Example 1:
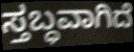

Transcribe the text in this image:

ಸ್ತಬ್ಧವಾಗಿದೆ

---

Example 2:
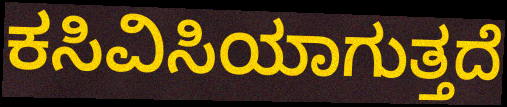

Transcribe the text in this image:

ಕಸಿವಿಸಿಯಾಗುತ್ತದೆ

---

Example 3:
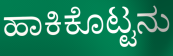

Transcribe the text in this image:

ಹಾಕಿಕೊಟ್ಟನು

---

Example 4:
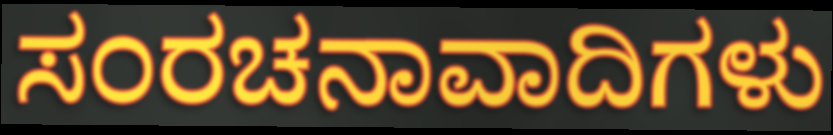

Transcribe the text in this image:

ಸಂರಚನಾವಾದಿಗಳು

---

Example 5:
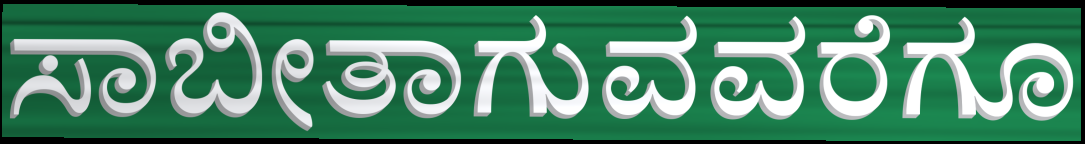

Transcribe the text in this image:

ಸಾಬೀತಾಗುವವರೆಗೂ